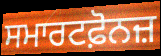
ਸਮਾਰਟਫ਼ੋਨਜ਼